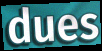
dues